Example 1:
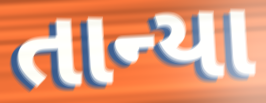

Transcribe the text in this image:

તાન્યા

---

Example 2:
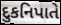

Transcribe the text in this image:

દુકનિપાતે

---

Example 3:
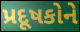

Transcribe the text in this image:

પ્રદૂષકોને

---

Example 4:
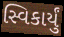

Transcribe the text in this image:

સ્વિકાર્યું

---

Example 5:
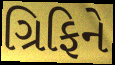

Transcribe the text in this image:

ગ્રિફિને